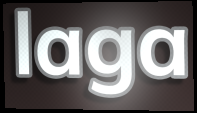
laga